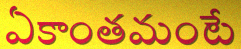
ఏకాంతమంటే